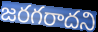
జరగరాదని